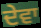
ਦੇਵਾ